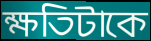
ক্ষতিটাকে